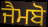
ਜੈਮਬੋ